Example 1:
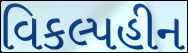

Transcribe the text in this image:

વિકલ્પહીન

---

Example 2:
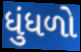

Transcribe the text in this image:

ધુંધળો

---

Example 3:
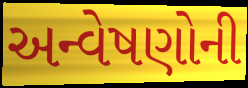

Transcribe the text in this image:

અન્વેષણોની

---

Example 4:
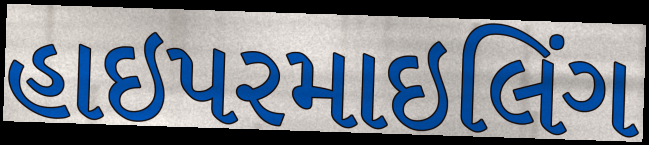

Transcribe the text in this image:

હાઇપરમાઇલિંગ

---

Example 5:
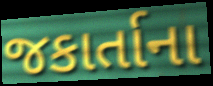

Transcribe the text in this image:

જકાર્તાના